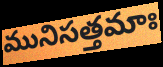
మునిసత్తమాః